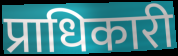
प्राधिकारी